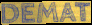
DEMAT